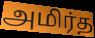
அமிர்த